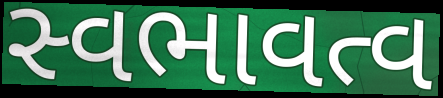
સ્વભાવત્વ